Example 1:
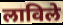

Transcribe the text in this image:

लाविले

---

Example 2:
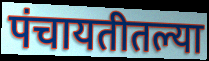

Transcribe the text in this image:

पंचायतीतल्या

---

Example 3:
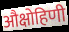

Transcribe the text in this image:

औक्षोहिणी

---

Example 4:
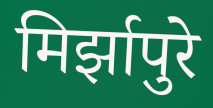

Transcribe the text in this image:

मिर्झापुरे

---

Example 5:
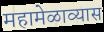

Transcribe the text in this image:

महामेळाव्यास